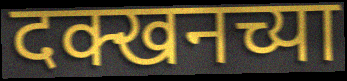
दक्खनच्या